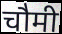
चौमी